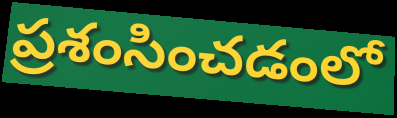
ప్రశంసించడంలో